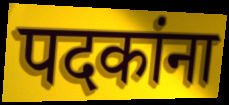
पदकांना